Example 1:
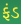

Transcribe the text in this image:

ફંડ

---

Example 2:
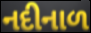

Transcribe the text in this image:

નદીનાળ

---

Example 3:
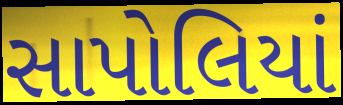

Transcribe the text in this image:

સાપોલિયાં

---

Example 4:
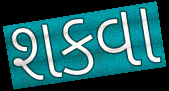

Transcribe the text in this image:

શકવા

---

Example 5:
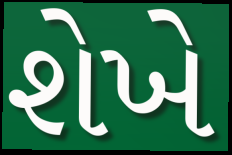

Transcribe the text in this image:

શેખે